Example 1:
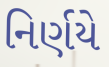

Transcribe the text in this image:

નિર્ણયે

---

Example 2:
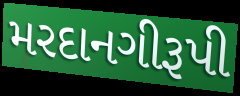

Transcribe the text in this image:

મરદાનગીરૂપી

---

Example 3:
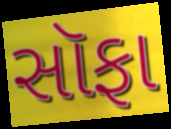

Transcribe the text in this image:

સૉફા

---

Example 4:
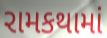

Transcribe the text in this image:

રામકથામાં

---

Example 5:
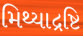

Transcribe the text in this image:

મિથ્યાદ્રષ્ટિ